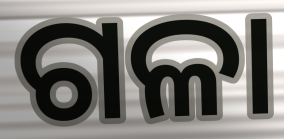
ଗଳା